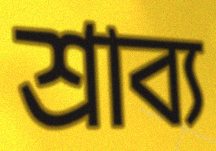
শ্ৰাব্য